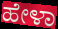
ಹೇಳಾ